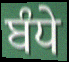
ਬੰਧੇ